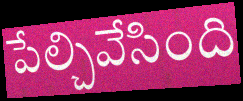
పేల్చివేసింది